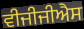
ਵੀਜੀਜੀਐਸ